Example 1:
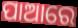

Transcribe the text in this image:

ପାଆରେ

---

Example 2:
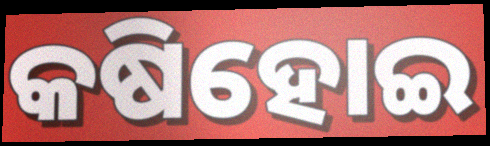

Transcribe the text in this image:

କଷିହୋଇ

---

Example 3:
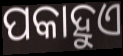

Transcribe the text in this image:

ପକାହୁଏ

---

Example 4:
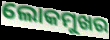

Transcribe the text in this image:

ଲୋକମୁଖର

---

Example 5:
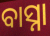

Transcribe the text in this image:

ବାସ୍ନା